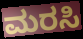
ಮರಸಿ